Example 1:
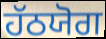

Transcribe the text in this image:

ਹੱਠਯੋਗ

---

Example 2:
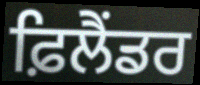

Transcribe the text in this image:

ਫ਼ਿਲੈਂਡਰ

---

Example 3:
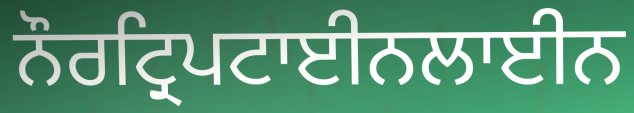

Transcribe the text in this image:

ਨੌਰਟ੍ਰਿਪਟਾਈਨਲਾਈਨ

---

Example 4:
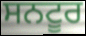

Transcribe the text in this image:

ਸਨਟੂਰ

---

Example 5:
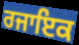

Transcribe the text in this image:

ਰਜਾਇਕ